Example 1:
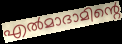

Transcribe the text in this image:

എൽമാദാമിന്റെ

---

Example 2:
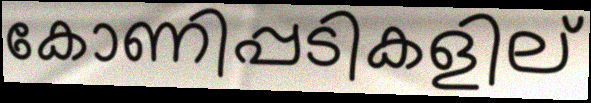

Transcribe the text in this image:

കോണിപ്പടികളില്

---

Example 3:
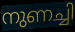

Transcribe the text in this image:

നുണച്ചി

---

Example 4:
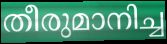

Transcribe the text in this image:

തീരുമാനിച്ച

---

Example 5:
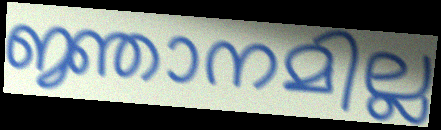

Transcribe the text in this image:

ജ്ഞാനമില്ല